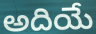
అదియే